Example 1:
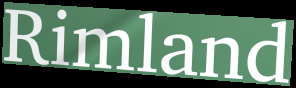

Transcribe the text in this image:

Rimland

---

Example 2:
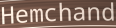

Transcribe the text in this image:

Hemchand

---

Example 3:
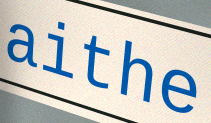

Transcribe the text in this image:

aithe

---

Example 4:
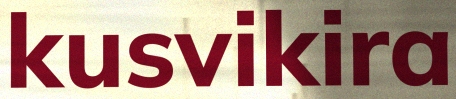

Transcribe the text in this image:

kusvikira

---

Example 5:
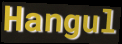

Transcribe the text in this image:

Hangul